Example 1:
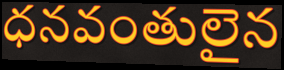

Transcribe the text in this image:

ధనవంతులైన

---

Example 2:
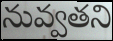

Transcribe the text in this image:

నువ్వతని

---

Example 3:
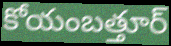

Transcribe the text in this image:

కోయంబత్తూర్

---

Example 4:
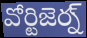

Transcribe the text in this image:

వోర్టిజెర్న్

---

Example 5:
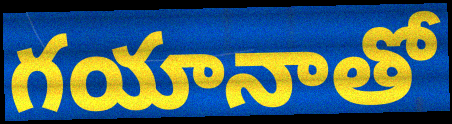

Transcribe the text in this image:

గయానాతో